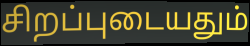
சிறப்புடையதும்